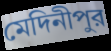
মেদিনীপুর